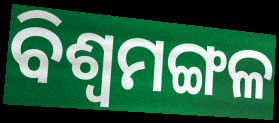
ବିଶ୍ୱମଙ୍ଗଳ